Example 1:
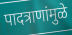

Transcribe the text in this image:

पादत्राणांमुळे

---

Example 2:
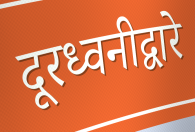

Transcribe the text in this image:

दूरध्वनीद्वारे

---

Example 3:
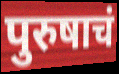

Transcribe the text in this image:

पुरुषाचं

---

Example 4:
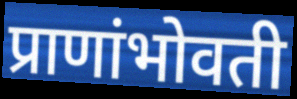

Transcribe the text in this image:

प्राणांभोवती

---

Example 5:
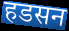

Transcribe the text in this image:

हडसन